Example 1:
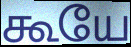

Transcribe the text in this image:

கூயே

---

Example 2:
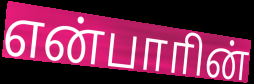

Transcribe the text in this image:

என்பாரின்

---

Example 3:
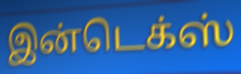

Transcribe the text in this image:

இன்டெக்ஸ்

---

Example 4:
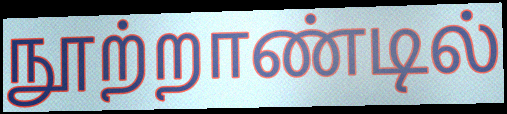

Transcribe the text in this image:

நூற்றாண்டில்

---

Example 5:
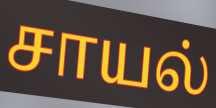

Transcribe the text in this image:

சாயல்